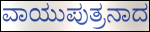
ವಾಯುಪುತ್ರನಾದ